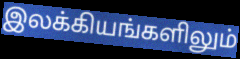
இலக்கியங்களிலும்